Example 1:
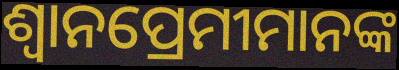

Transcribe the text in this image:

ଶ୍ଵାନପ୍ରେମୀମାନଙ୍କ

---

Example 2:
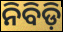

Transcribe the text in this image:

ନିବିଡ଼ି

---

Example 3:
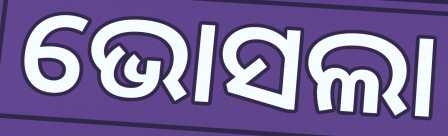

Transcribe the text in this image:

ଭୋସଲା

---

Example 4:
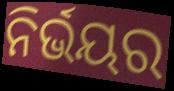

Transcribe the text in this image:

ନିର୍ଭୟର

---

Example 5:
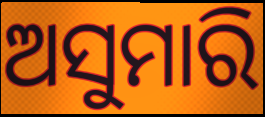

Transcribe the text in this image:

ଅସୁମାରି